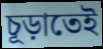
চূড়াতেই